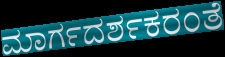
ಮಾರ್ಗದರ್ಶಕರಂತೆ